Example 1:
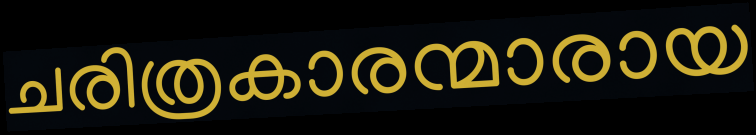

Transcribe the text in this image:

ചരിത്രകാരന്മാരായ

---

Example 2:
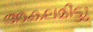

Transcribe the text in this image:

അകലമിട്ടു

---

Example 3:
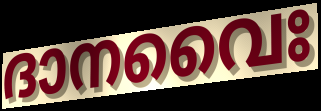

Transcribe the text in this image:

ദാനവൈഃ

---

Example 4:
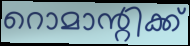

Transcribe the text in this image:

റൊമാന്റിക്ക്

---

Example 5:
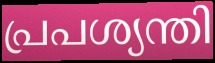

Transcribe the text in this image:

പ്രപശ്യന്തി